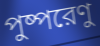
পুষ্পরেণু